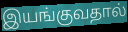
இயங்குவதால்